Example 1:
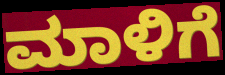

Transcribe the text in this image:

ಮಾಳಿಗೆ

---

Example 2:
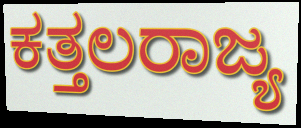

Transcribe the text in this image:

ಕತ್ತಲರಾಜ್ಯ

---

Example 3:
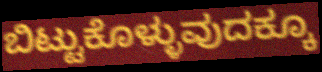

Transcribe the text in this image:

ಬಿಟ್ಟುಕೊಳ್ಳುವುದಕ್ಕೂ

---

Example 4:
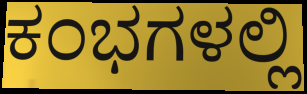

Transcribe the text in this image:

ಕಂಭಗಳಲ್ಲಿ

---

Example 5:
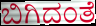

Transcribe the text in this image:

ಬಿಗಿದಂತೆ